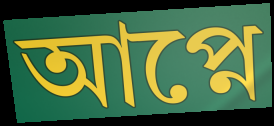
আপ্নে